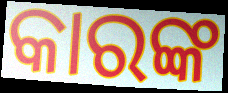
କାରଙ୍କ